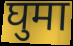
घुमा